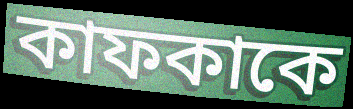
কাফকাকে